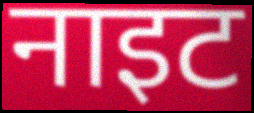
नाइट